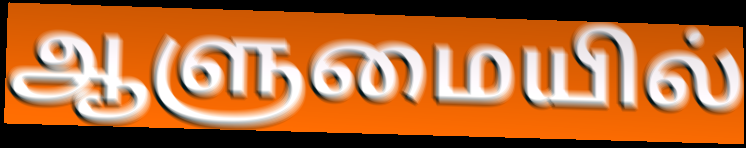
ஆளுமையில்